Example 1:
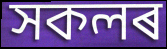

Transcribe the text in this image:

সকলৰ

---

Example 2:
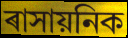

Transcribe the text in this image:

ৰাসায়নিক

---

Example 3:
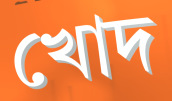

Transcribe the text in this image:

খোদ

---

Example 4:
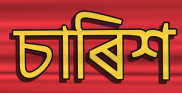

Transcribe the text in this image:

চাৰিশ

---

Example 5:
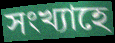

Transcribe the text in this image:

সংখ্যাহে